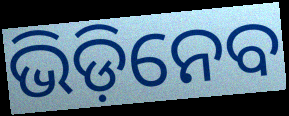
ଭିଡ଼ିନେବ